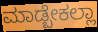
ಮಾಡ್ಬೇಕಲ್ಲಾ